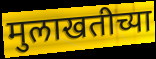
मुलाखतीच्या